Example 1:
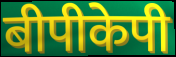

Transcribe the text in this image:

बीपीकेपी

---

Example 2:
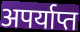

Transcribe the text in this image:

अपर्याप्त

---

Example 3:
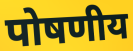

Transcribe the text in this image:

पोषणीय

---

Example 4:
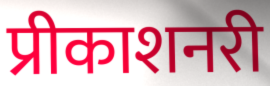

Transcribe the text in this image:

प्रीकाशनरी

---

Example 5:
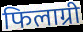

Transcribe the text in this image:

फिलाग्री